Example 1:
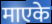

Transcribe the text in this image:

माएके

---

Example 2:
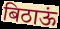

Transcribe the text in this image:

बिठाऊं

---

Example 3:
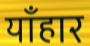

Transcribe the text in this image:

याँहार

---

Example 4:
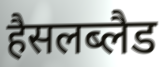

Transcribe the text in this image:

हैसलब्लैड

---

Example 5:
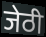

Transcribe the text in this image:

जेठी